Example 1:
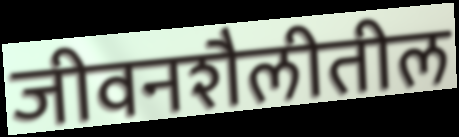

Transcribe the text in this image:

जीवनशैलीतील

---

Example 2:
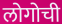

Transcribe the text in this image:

लोगोची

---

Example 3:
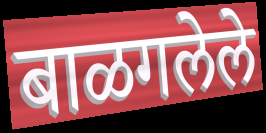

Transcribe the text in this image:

बाळगलेले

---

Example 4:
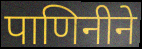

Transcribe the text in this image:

पाणिनीने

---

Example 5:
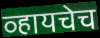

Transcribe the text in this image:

व्हायचेच